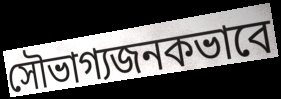
সৌভাগ্যজনকভাবে